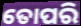
ତୋପରି